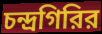
চন্দ্রগিরির